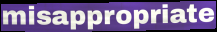
misappropriate